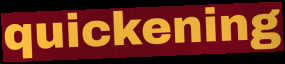
quickening